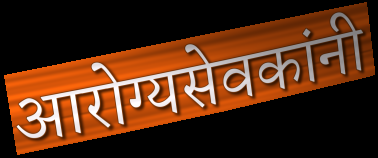
आरोग्यसेवकांनी